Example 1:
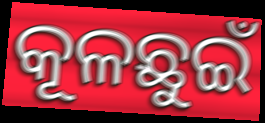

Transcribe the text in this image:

କୂଳଛୁଇଁ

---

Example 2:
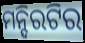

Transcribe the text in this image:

ମନ୍ଦିରଟିର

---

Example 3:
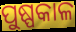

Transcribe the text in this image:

ପୁଷ୍ପକାଳ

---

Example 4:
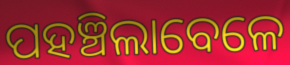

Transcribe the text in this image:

ପହଞ୍ଚିଲାବେଳେ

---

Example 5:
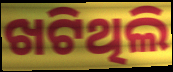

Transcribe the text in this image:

ଖଟିଥିଲି